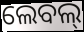
ଲେବଲ୍